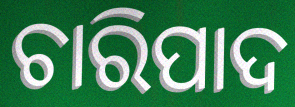
ଚାରିପାଦ